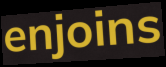
enjoins